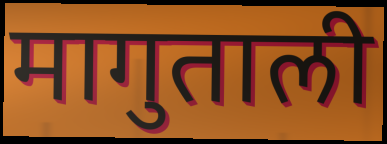
मागुताली